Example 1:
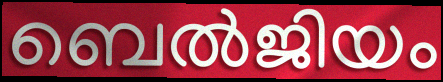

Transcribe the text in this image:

ബെൽജിയം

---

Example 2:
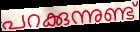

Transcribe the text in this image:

പറക്കുന്നുണ്ട്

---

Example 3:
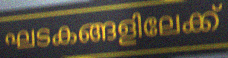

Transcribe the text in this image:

ഘടകങ്ങളിലേക്ക്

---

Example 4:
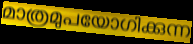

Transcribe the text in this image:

മാത്രമുപയോഗിക്കുന്ന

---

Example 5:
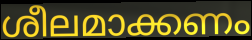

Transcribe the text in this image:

ശീലമാക്കണം